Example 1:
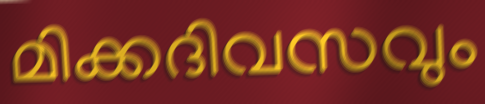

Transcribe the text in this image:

മിക്കദിവസവും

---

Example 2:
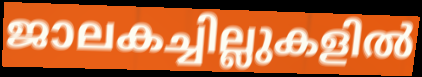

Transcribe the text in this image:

ജാലകച്ചില്ലുകളിൽ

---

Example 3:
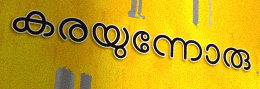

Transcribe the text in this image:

കരയുന്നോരു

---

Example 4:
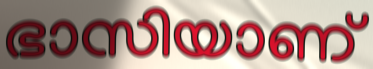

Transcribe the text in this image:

ഭാസിയാണ്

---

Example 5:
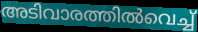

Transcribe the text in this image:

അടിവാരത്തിൽവെച്ച്